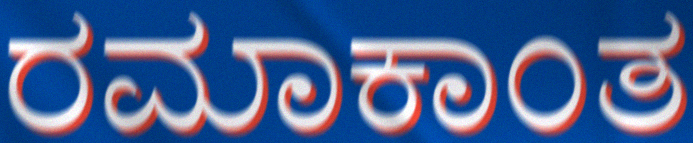
ರಮಾಕಾಂತ